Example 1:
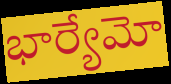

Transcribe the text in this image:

భార్యేమో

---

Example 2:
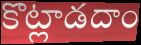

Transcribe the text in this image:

కొట్లాడదాం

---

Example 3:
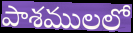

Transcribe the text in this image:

పాశములలో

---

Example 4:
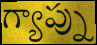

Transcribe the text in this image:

గ్యాప్ను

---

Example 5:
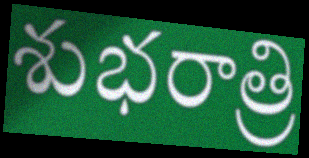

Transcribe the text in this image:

శుభరాత్రి